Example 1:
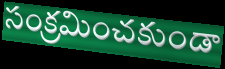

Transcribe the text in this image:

సంక్రమించకుండా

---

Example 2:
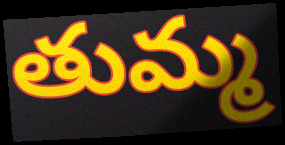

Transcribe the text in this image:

తుమ్మ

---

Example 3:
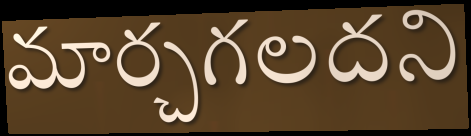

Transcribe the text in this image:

మార్చగలదని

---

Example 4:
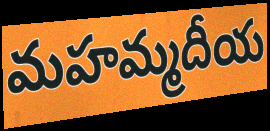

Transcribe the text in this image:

మహమ్మదీయ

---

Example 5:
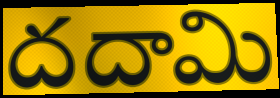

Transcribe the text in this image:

దదామి